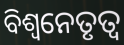
ବିଶ୍ୱନେତୃତ୍ୱ